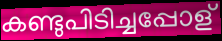
കണ്ടുപിടിച്ചപ്പോള്